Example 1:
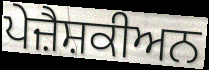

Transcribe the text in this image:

ਪੇਜ਼ੈਸ਼ਕੀਅਨ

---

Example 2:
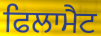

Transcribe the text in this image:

ਫਿਲਾਮੈਟ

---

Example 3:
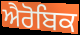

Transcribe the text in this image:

ਐਰੋਬਿਕ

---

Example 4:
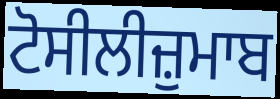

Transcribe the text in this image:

ਟੋਸੀਲੀਜ਼ੁਮਾਬ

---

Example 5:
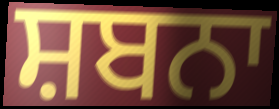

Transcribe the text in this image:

ਸ਼ਬਨਾ